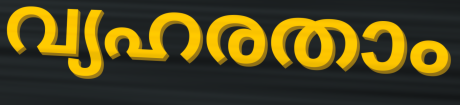
വ്യഹരതാം